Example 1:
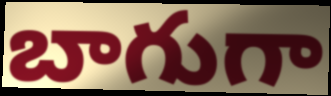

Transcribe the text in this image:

బాగుగా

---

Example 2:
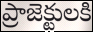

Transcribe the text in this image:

ప్రాజెక్టులకి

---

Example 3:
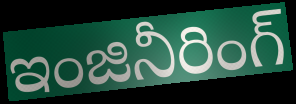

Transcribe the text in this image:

ఇంజినీరింగ్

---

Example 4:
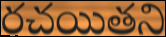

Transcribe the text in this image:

రచయితని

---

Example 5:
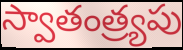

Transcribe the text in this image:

స్వాతంత్ర్యపు